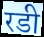
रडी